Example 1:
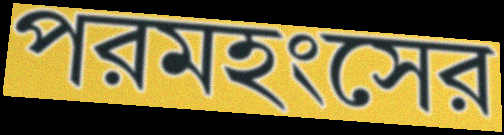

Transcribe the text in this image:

পরমহংসের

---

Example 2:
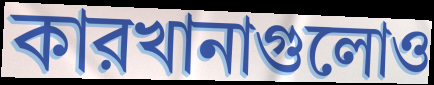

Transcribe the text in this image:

কারখানাগুলোও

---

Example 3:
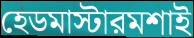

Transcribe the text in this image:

হেডমাস্টারমশাই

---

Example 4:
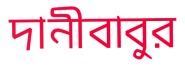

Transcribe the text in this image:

দানীবাবুর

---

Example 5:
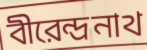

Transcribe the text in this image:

বীরেন্দ্রনাথ